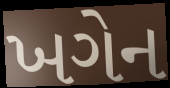
ખગેન